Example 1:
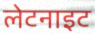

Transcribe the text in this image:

लेटनाइट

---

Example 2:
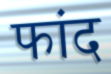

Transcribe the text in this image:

फांद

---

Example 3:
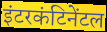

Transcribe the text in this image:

इंटरकंटिनेंटल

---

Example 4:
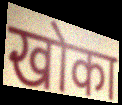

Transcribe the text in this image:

खोका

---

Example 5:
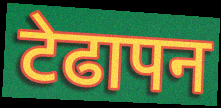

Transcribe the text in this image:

टेढापन